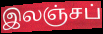
இலஞ்சப்